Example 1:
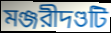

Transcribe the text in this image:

মঞ্জরীদণ্ডটি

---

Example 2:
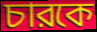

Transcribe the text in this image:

চারকে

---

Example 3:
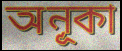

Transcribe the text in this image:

অনূকা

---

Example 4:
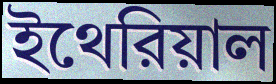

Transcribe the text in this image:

ইথেরিয়াল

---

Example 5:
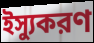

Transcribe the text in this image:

ইস্যুকরণ